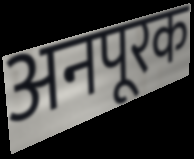
अनपूरक